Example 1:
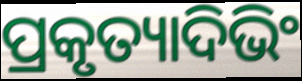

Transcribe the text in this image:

ପ୍ରକୃତ୍ୟାଦିଭିଂ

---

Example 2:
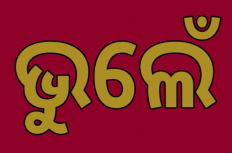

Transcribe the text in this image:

ଭୁଲେଁ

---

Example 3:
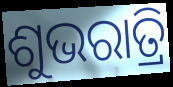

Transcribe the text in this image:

ଶୁଭରାତ୍ରି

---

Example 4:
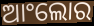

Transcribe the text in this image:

ଆଂଲୋର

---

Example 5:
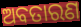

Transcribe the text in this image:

ଅବତାରଣ